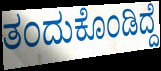
ತಂದುಕೊಂಡಿದ್ದೆ